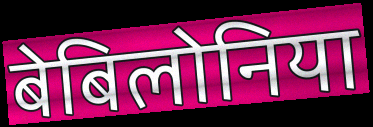
बेबिलोनिया